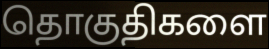
தொகுதிகளை